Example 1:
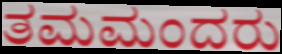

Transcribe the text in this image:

ತಮಮಂದರು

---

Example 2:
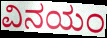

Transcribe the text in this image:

ವಿನಯಂ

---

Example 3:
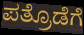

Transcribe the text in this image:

ಪತ್ರೊಡೆಗೆ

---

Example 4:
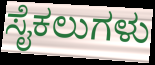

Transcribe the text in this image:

ಸೈಕಲುಗಳು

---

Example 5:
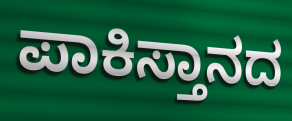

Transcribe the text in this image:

ಪಾಕಿಸ್ತಾನದ